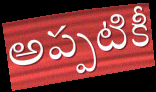
అప్పటికీ